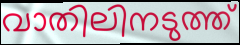
വാതിലിനടുത്ത്